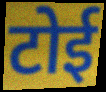
टोई